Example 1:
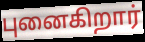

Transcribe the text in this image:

புனைகிறார்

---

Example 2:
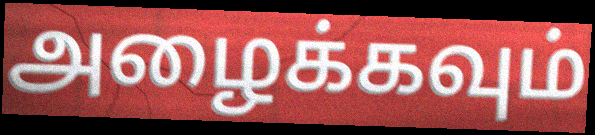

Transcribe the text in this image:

அழைக்கவும்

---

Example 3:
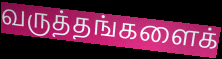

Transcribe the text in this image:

வருத்தங்களைக்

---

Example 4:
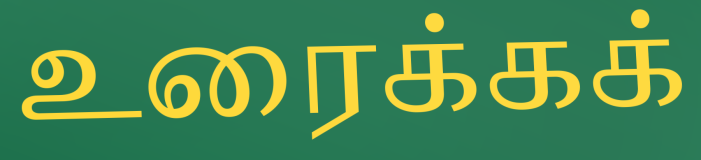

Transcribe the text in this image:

உரைக்கக்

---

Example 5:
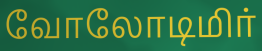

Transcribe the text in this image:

வோலோடிமிர்